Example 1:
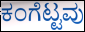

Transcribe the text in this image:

ಕಂಗೆಟ್ಟವು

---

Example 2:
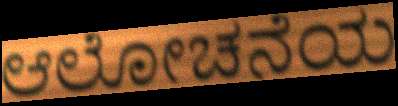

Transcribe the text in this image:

ಆಲೋಚನೆಯ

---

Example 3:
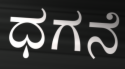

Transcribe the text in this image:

ಧಗನೆ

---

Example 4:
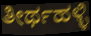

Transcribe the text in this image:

ತೀರ್ಥಹಳ್ಳಿ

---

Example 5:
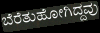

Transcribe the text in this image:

ಬೆರೆತುಹೋಗಿದ್ದವು